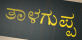
ತಾಳಗುಪ್ಪ